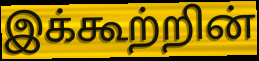
இக்கூற்றின்